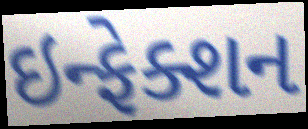
ઇન્ફેક્શન